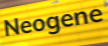
Neogene